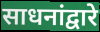
साधनांद्वारे